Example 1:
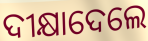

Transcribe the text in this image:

ଦୀକ୍ଷାଦେଲେ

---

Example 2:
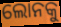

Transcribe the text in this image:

ଲୋନକୁ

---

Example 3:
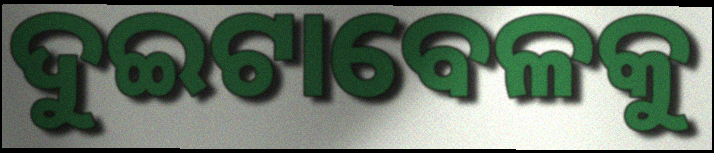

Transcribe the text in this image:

ଦୁଇଟାବେଳକୁ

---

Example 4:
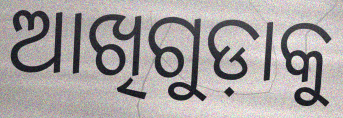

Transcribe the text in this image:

ଆଖିଗୁଡ଼ାକୁ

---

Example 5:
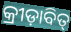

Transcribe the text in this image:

କ୍ରୀଡ଼ାବିତ୍